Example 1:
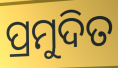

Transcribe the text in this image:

ପ୍ରମୁଦିତ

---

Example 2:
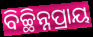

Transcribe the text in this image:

ବିଚ୍ଛିନ୍ନପ୍ରାୟ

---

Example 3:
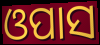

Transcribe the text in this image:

ଓପାସ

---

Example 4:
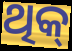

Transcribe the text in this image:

ଥିକ୍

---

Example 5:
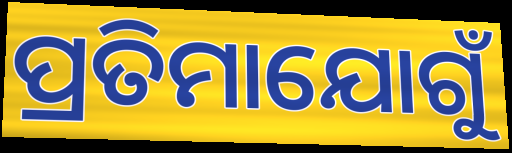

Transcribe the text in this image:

ପ୍ରତିମାଯୋଗୁଁ